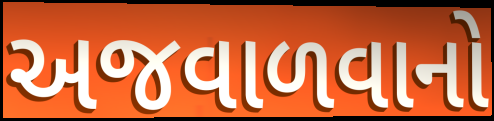
અજવાળવાનો